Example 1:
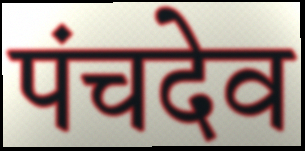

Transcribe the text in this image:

पंचदेव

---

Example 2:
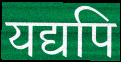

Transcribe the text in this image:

यद्यपि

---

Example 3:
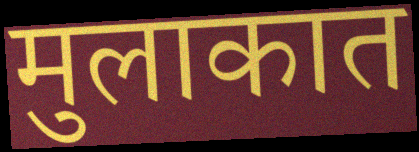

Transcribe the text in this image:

मुलाकात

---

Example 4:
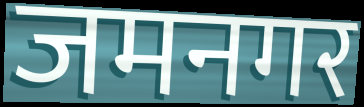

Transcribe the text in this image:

जमनगर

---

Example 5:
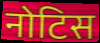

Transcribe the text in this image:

नोटिस